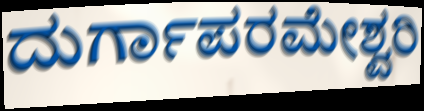
ದುರ್ಗಾಪರಮೇಶ್ವರಿ